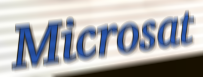
Microsat